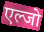
एल्जो